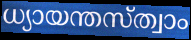
ധ്യായന്തസ്ത്വാം